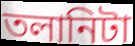
তলানিটা